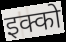
इक्को